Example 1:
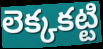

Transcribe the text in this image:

లెక్కకట్టి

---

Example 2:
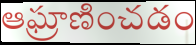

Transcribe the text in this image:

ఆఘ్రాణించడం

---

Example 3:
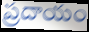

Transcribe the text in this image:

ప్రదాయం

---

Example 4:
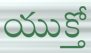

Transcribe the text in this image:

యుక్తో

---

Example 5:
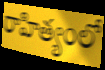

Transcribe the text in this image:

రాహిత్యంలో